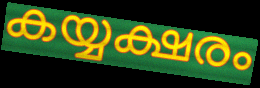
കയ്യക്ഷരം